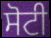
ਸੋਟੀ